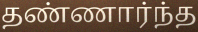
தண்ணார்ந்த